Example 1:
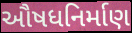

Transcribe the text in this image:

ઔષધનિર્માણ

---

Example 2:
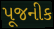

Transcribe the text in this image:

પૂજનીક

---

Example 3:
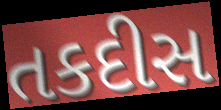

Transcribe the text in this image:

તકદીસ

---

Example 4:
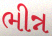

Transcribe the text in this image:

ભીન્ન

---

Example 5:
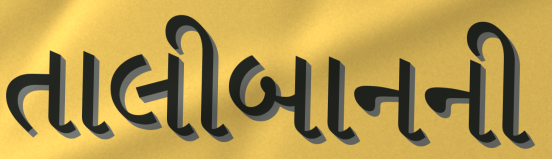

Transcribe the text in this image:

તાલીબાનની